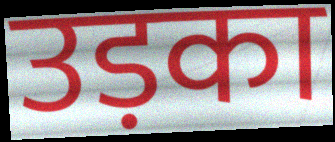
उड़का